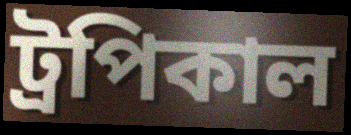
ট্রপিকাল